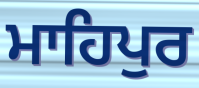
ਮਾਹਿਪੁਰ